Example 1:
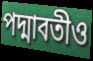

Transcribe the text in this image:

পদ্মাবতীও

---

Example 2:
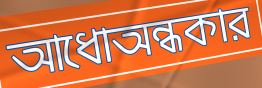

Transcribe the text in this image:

আধোঅন্ধকার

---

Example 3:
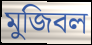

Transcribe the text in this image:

মুজিবল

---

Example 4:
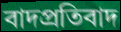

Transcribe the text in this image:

বাদপ্রতিবাদ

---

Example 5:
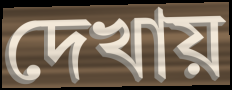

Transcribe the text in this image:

দেখায়